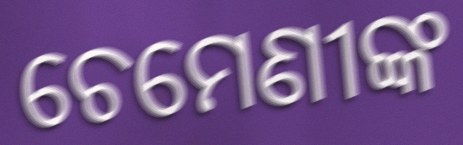
ଚେମେଣୀଙ୍କ